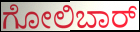
ಗೋಲಿಬಾರ್